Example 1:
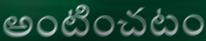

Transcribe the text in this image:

అంటించటం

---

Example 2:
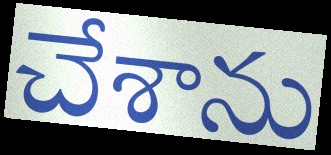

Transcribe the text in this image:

చేశాను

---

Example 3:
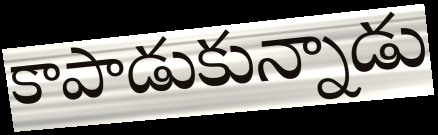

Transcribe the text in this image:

కాపాడుకున్నాడు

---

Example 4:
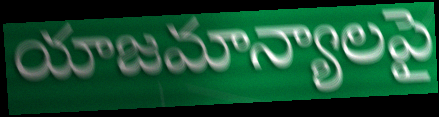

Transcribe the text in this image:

యాజమాన్యాలపై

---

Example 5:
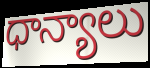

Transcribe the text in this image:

ధాన్యాలు